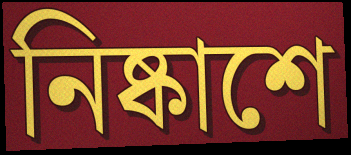
নিষ্কাশে